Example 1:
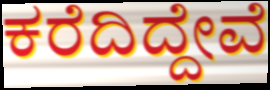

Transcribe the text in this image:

ಕರೆದಿದ್ದೇವೆ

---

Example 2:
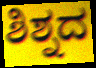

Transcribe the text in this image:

ಶಿಶ್ನದ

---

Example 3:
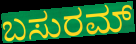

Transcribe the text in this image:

ಬಸುರಮ್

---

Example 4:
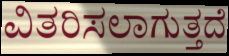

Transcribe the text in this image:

ವಿತರಿಸಲಾಗುತ್ತದೆ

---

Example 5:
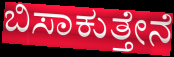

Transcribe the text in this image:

ಬಿಸಾಕುತ್ತೇನೆ